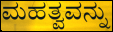
ಮಹತ್ವವನ್ನು